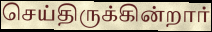
செய்திருக்கின்றார்